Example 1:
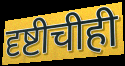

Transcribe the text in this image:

दृष्टीचीही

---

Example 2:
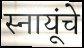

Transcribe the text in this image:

स्नायूंचे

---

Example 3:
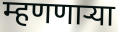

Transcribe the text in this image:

म्हणणार्‍या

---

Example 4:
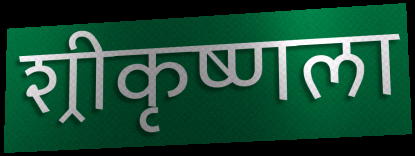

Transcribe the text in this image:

श्रीकृष्णला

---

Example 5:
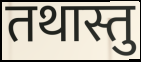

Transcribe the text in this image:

तथास्तु